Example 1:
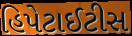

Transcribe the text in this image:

હિપેટાઈટીસ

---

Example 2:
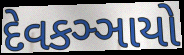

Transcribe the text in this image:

દેવકઞ્ઞાયો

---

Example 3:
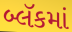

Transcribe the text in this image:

બ્લૅકમાં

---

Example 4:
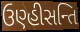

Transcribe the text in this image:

ઉણ્હીસન્તિ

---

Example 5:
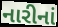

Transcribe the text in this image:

નારીનાં